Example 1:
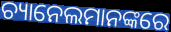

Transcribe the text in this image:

ଚ୍ୟାନେଲମାନଙ୍କରେ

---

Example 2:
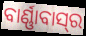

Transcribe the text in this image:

ବାର୍ଣ୍ଣାବାସ୍‌ର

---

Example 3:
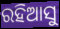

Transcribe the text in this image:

ରହିଆସୁ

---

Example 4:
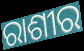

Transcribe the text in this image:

ରାଶୀର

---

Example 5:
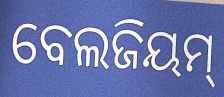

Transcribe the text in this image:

ବେଲଜିୟମ୍